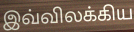
இவ்விலக்கிய